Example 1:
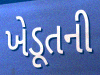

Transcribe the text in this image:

ખેડૂતની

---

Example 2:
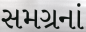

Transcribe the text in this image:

સમગ્રનાં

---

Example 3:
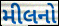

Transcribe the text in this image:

મીલનો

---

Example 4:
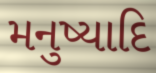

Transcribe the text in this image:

મનુષ્યાદિ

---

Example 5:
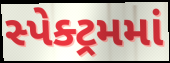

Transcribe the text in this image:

સ્પેક્ટ્રમમાં